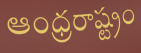
ఆంధ్రరాష్ట్రం